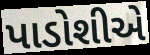
પાડોશીએ